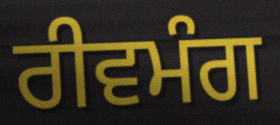
ਰੀਵਮੰਗ